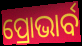
ପ୍ରୋଭାର୍ବ